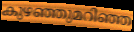
കുഴഞ്ഞുമറിഞ്ഞ